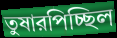
তুষারপিচ্ছিল